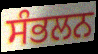
ਸੰਭਲਨ